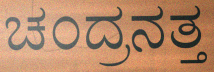
ಚಂದ್ರನತ್ತ